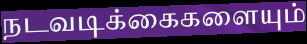
நடவடிக்கைகளையும்